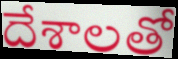
దేశాలతో